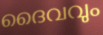
ദൈവവും